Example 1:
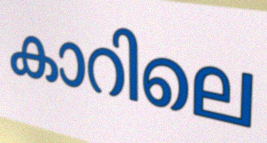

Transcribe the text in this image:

കാറിലെ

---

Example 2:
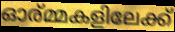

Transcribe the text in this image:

ഓര്മ്മകളിലേക്ക്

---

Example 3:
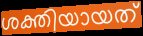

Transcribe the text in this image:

ശക്തിയായത്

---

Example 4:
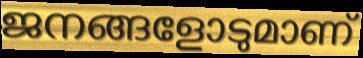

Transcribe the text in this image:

ജനങ്ങളോടുമാണ്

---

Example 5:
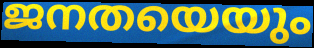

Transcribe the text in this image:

ജനതയെയും